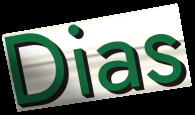
Dias